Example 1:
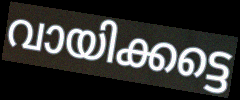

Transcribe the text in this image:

വായിക്കട്ടെ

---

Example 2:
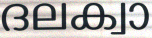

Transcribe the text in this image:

ദലക്വാ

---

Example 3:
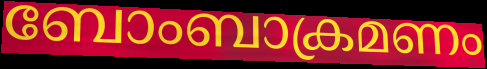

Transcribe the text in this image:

ബോംബാക്രമണം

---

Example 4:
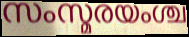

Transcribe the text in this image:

സംസ്മരയംശ്ച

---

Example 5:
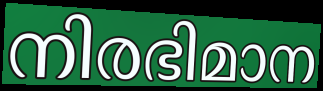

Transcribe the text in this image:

നിരഭിമാന